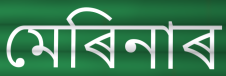
মেৰিনাৰ